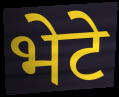
भेटे